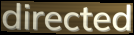
directed